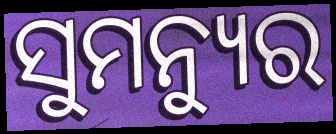
ସୁମନ୍ୟୁର